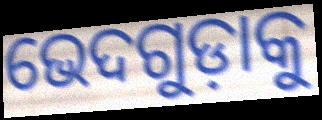
ଭେଦଗୁଡ଼ାକୁ